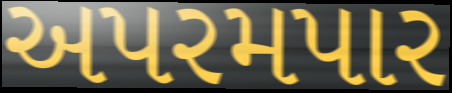
અપરમપાર